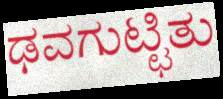
ಢವಗುಟ್ಟಿತು